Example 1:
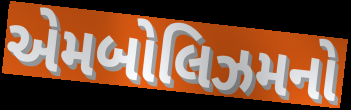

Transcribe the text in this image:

એમબોલિઝમનો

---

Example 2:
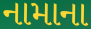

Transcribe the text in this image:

નામાના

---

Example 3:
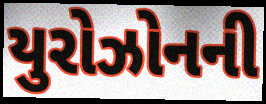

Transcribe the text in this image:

યુરોઝોનની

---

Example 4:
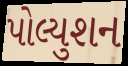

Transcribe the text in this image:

પોલ્યુશન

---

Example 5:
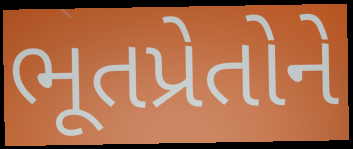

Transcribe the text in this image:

ભૂતપ્રેતોને